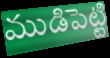
ముడిపెట్టి